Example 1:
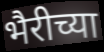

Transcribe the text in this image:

भैरीच्या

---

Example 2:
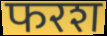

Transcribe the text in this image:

फरश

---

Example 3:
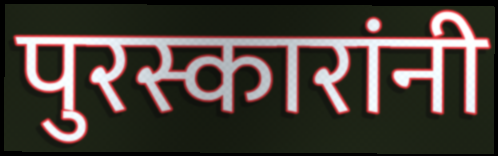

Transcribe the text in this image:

पुरस्कारांनी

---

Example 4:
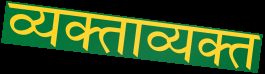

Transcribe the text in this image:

व्यक्ताव्यक्त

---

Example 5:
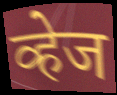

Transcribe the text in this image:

व्हेज